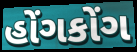
હોંગકોંગ